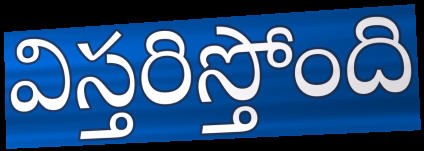
విస్తరిస్తోంది